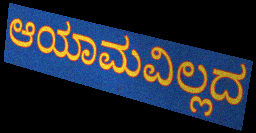
ಆಯಾಮವಿಲ್ಲದ